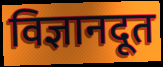
विज्ञानदूत